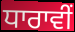
ਧਾਰਾਵੀਂ